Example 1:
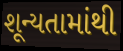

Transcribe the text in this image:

શૂન્યતામાંથી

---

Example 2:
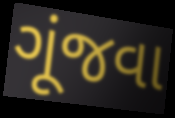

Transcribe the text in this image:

ગૂંજવા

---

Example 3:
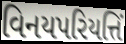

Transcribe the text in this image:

વિનયપરિયત્તિં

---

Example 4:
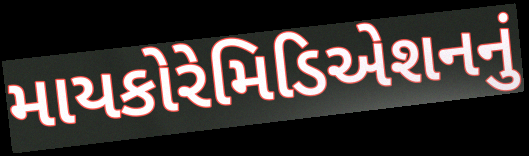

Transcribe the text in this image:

માયકોરેમિડિએશનનું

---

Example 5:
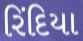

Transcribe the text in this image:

રિંદિયા